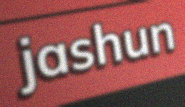
jashun